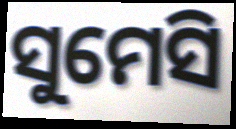
ସୁମେସି